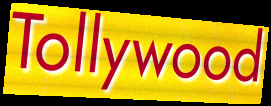
Tollywood